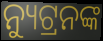
ନ୍ୟୁଟ୍ରନଙ୍କ